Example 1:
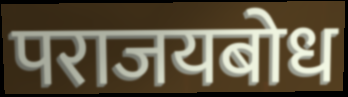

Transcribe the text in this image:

पराजयबोध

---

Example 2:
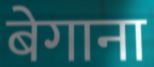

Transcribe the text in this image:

बेगाना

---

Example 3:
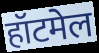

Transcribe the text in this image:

हॉटमेल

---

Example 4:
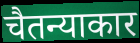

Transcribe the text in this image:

चैतन्याकार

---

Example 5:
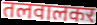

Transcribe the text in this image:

तलवालकर